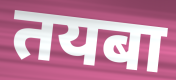
तयबा